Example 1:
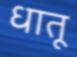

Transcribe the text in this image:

धातू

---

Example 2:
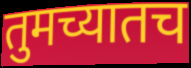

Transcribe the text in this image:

तुमच्यातच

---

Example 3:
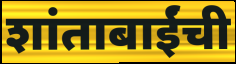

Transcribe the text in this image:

शांताबाईंची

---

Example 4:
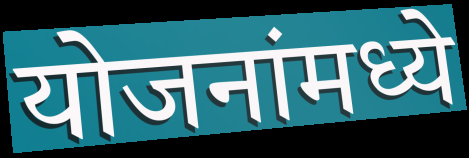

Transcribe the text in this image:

योजनांमध्ये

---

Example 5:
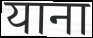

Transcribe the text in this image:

याना